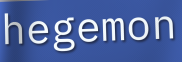
hegemon